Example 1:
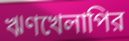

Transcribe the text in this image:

ঋণখেলাপির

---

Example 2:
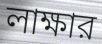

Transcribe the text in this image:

লাক্ষার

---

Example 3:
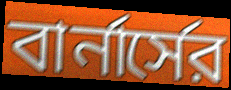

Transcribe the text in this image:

বার্নার্সের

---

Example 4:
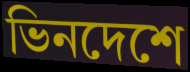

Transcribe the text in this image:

ভিনদেশে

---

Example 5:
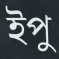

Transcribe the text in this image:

ইপু